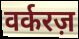
वर्करज़